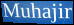
Muhajir